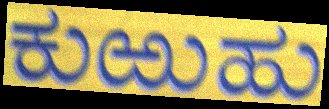
ಕುಱುಹು